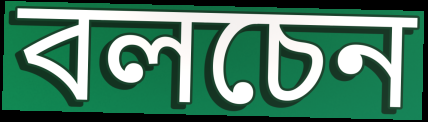
বলচেন